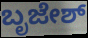
ಬೃಜೇಶ್